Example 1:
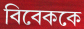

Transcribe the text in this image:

বিবেককে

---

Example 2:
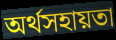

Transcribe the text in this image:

অর্থসহায়তা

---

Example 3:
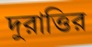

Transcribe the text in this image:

দুরাত্তির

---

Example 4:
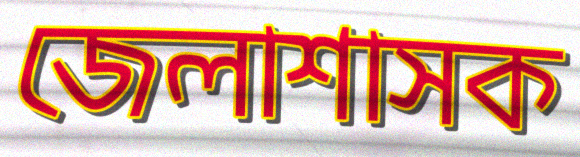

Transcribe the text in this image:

জেলাশাসক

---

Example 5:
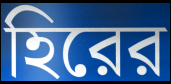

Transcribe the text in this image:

হিরের